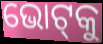
ଭୋଟ୍‍କୁ